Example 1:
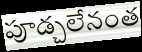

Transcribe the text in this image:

పూడ్చలేనంత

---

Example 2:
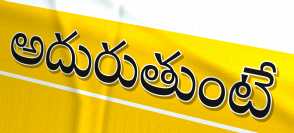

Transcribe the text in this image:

అదురుతుంటే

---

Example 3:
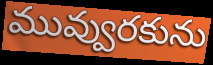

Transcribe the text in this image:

మువ్వురకును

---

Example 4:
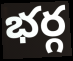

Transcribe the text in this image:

భర్గ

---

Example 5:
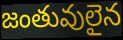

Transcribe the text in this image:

జంతువులైన